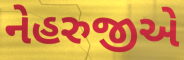
નેહરુજીએ